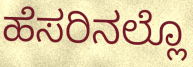
ಹೆಸರಿನಲ್ಲೊ